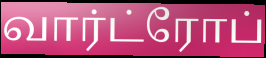
வார்ட்ரோப்